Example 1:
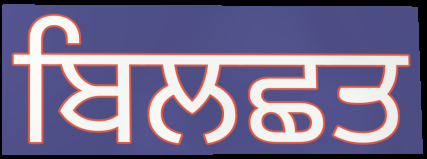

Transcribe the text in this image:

ਬਿਲਛਤ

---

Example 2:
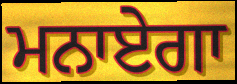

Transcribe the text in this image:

ਮਨਾਏਗਾ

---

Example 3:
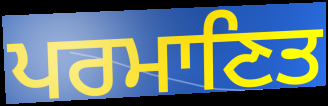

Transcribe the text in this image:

ਪਰਮਾਣਿਤ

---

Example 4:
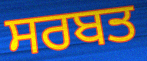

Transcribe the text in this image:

ਸਰਬਤ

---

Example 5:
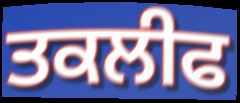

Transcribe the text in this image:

ਤਕਲੀਫ